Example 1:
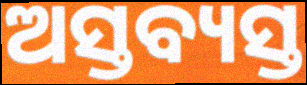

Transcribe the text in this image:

ଅସ୍ତବ୍ୟସ୍ତ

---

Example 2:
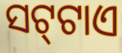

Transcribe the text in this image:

ସଟ୍‍ଟାଏ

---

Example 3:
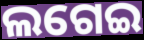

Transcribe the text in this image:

ଲଗେଇ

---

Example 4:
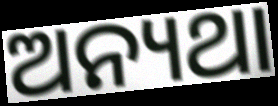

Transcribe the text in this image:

ଅନ୍ୟଥା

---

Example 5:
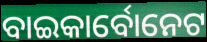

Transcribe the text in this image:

ବାଇକାର୍ବୋନେଟ